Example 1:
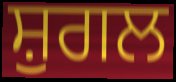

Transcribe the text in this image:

ਸ਼ੁਗਲ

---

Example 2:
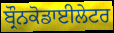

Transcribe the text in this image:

ਬ੍ਰੌਨਕੋਡਾਈਲੇਟਰ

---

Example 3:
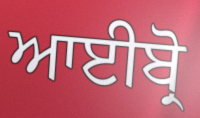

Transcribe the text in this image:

ਆਈਬ੍ਰੋ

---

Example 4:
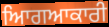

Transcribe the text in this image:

ਆਿਗਆਕਾਰੀ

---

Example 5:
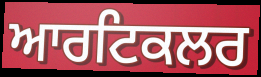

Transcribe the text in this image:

ਆਰਟਿਕਲਰ